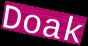
Doak